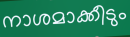
നാശമാക്കീടും